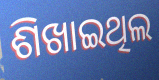
ଶିଖାଇଥିଲ